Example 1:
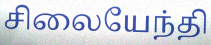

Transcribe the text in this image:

சிலையேந்தி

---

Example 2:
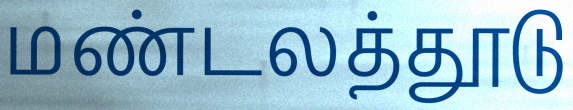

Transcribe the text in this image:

மண்டலத்தூடு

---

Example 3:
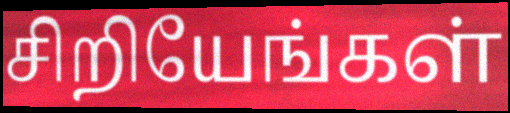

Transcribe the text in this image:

சிறியேங்கள்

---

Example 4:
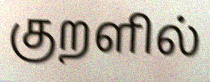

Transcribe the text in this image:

குறளில்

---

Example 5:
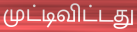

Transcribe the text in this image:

முட்டிவிட்டது